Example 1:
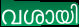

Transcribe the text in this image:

വശായി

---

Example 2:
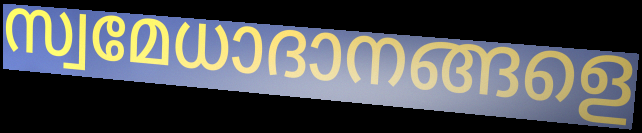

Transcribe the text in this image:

സ്വമേധാദാനങ്ങളെ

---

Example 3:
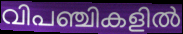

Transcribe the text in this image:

വിപഞ്ചികളിൽ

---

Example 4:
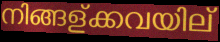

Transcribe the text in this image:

നിങ്ങള്ക്കവയില്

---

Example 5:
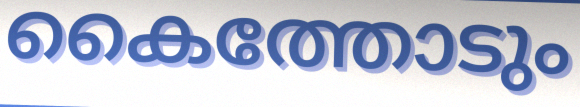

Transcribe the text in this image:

കൈത്തോടും